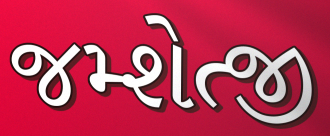
જમ્શેત્જી